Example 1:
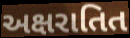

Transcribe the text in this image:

અક્ષરાતિત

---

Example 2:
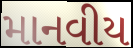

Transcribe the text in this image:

માનવીય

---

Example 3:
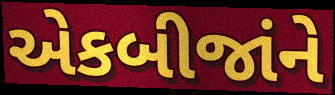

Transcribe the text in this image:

એકબીજાંને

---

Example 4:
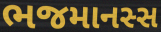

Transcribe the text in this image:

ભજમાનસ્સ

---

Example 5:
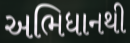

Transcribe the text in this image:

અભિધાનથી